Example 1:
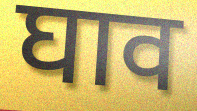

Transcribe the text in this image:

घाव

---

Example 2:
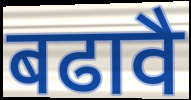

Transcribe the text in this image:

बढावै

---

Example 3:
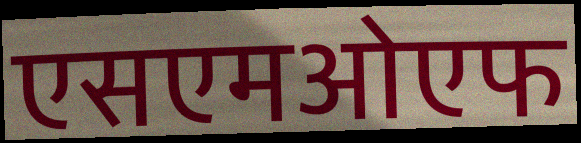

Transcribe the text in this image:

एसएमओएफ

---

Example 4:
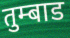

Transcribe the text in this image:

तुम्बाड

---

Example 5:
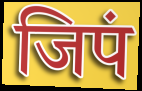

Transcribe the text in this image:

जिपं